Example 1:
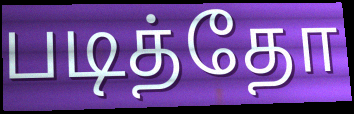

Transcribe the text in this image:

படித்தோ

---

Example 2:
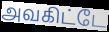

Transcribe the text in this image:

அவகிட்டே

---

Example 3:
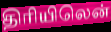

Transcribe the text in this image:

திரியிலென்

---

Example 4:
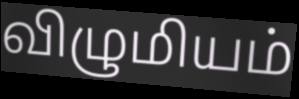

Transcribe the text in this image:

விழுமியம்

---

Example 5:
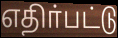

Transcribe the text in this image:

எதிர்பட்டு